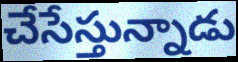
చేసేస్తున్నాడు